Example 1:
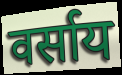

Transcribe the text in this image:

वर्साय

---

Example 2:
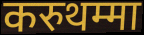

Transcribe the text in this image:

करुथम्मा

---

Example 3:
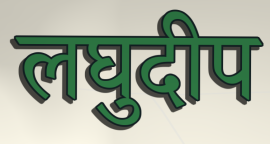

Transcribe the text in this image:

लघुदीप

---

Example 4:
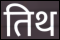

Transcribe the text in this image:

तिथ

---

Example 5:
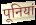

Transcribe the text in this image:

पूनियां